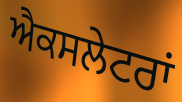
ਐਕਸਲੇਟਰਾਂ